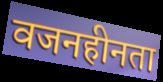
वजनहीनता